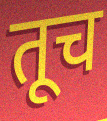
तूच